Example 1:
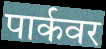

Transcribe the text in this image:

पार्कवर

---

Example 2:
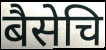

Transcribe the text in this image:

बैसेचि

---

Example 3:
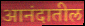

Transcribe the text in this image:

आनंदातील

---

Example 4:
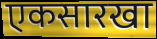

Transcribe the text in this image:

एकसारखा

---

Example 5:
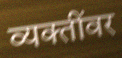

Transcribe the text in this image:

व्यक्तींवर